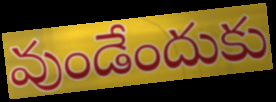
వుండేందుకు